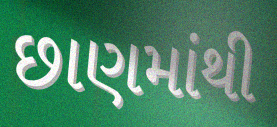
છાણમાંથી